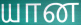
யான